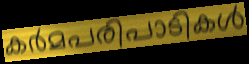
കർമപരിപാടികൾ